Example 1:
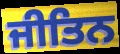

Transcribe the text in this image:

ਜੀਤਿਨ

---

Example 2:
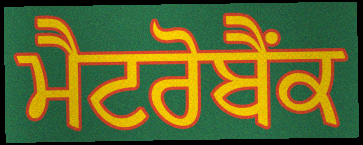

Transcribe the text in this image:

ਮੈਟਰੋਬੈਂਕ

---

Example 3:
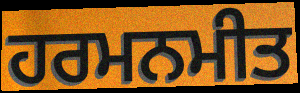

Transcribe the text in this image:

ਹਰਮਨਮੀਤ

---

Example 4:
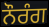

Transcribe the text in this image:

ਨੌਰੰਗ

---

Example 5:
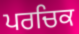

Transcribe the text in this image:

ਪਰਚਿਕ